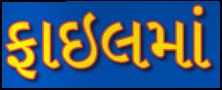
ફાઇલમાં